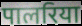
पालरिया